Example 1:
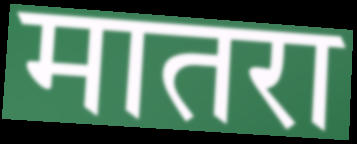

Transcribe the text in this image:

मातरा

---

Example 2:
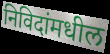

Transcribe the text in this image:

निविदांमधील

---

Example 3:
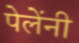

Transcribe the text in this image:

पेलेंनी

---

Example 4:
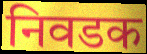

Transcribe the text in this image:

निवडक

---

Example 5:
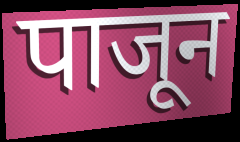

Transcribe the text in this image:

पाजून